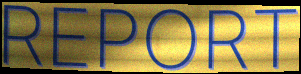
REPORT